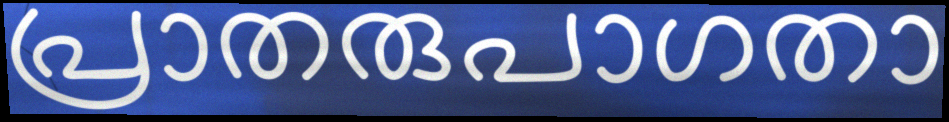
പ്രാതരുപാഗതാ